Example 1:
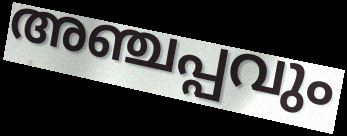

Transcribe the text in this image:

അഞ്ചപ്പവും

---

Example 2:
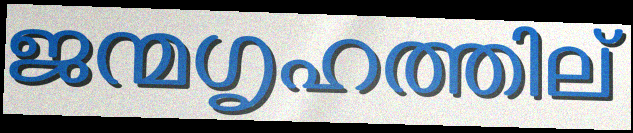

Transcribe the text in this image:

ജന്മഗൃഹത്തില്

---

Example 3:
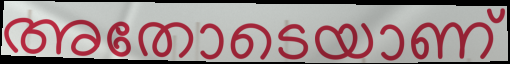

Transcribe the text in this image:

അതോടെയാണ്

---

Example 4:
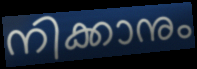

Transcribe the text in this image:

നിക്കാനും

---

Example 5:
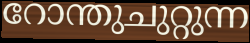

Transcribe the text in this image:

റോന്തുചുറ്റുന്ന